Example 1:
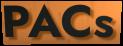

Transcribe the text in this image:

PACs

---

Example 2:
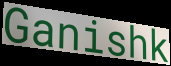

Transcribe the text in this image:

Ganishk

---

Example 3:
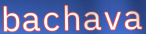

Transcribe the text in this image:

bachava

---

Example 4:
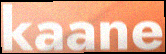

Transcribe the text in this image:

kaane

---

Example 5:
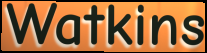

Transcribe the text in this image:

Watkins